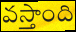
వస్తాంది